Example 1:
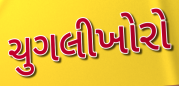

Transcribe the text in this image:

ચુગલીખોરો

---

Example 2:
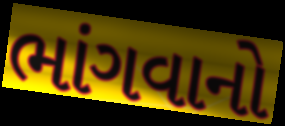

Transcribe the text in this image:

ભાંગવાનો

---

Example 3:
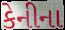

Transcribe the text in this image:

કેનીના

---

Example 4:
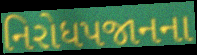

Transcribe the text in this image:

નિરોધપજાનના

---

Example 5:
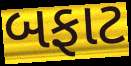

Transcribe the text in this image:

બફાટ